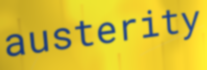
austerity